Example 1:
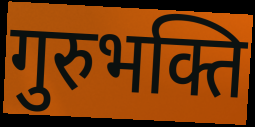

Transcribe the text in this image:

गुरुभक्ति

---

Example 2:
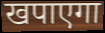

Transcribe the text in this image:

खपाएगा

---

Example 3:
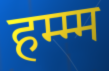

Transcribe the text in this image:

हम्म्म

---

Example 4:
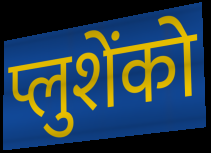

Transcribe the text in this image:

प्लुशेंको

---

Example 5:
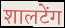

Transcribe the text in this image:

शालटेंग